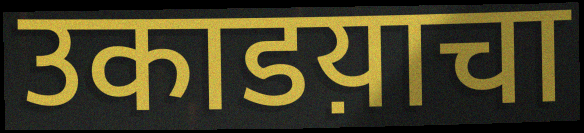
उकाडय़ाचा